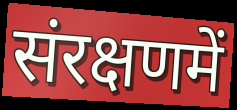
संरक्षणमें